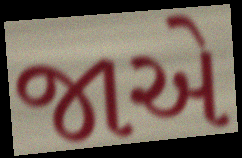
જાએ